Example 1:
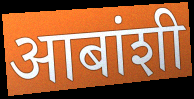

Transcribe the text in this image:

आबांशी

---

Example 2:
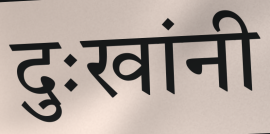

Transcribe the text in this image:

दुःखांनी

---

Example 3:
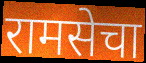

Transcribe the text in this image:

रामसेचा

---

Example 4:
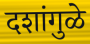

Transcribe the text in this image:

दशांगुळे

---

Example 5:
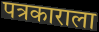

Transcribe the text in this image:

पत्रकाराला